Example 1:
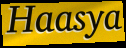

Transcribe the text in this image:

Haasya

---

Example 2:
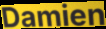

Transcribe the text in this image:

Damien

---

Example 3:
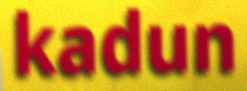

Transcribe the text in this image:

kadun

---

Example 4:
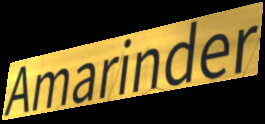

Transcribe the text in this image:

Amarinder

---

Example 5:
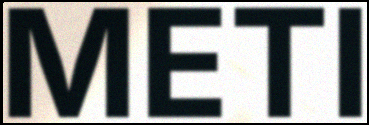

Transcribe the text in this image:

METI